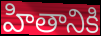
హితానికి